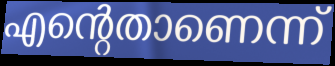
എന്റെതാണെന്ന്